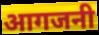
आगजनी